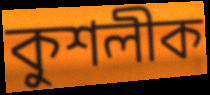
কুশলীক